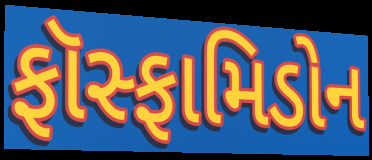
ફૉસ્ફામિડોન